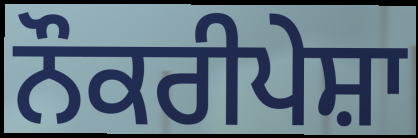
ਨੌਕਰੀਪੇਸ਼ਾ